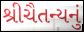
શ્રીચૈતન્યનું